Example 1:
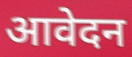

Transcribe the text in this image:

आवेदन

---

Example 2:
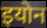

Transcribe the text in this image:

इयोन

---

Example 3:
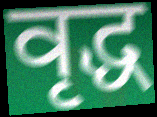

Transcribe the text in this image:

वृद्ध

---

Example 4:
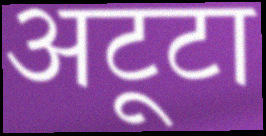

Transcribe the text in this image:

अटूटा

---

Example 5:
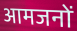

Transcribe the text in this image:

आमजनों